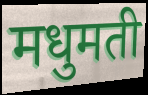
मधुमती